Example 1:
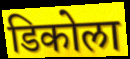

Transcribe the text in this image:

डिकोला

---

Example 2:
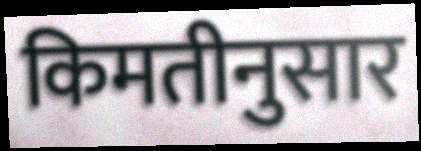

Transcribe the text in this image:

किमतीनुसार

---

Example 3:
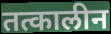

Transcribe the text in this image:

तत्कालीन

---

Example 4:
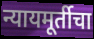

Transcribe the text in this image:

न्यायमूर्तीचा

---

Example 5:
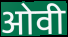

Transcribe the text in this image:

ओवी